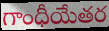
గాంధీయేతర